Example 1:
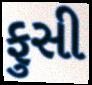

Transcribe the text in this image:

ફુસી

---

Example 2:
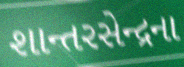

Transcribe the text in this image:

શાન્તરસેન્દ્રના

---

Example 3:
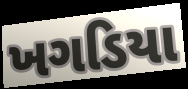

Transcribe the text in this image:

ખગડિયા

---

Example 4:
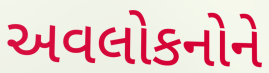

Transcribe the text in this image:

અવલોકનોને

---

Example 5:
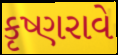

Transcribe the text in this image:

કૃષ્ણરાવે